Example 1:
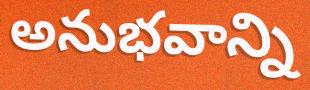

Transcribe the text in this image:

అనుభవాన్ని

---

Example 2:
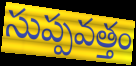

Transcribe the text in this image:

సుప్పవత్తం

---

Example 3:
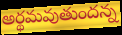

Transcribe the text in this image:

అర్థమవుతుందన్న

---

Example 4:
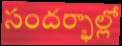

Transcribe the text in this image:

సందర్భాల్లో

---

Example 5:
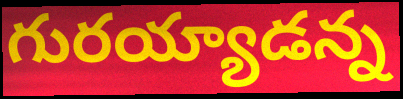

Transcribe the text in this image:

గురయ్యాడన్న